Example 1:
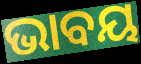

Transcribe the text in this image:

ଭାବୟ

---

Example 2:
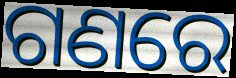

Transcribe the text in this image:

ଗଣରେ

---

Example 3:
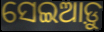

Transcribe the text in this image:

ସେଇଆଡ଼ୁ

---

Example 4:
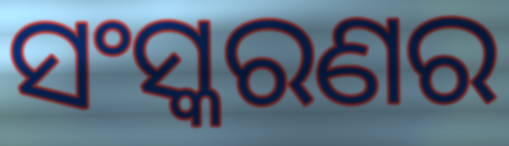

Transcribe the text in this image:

ସଂସ୍କରଣର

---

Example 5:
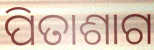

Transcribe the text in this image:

ପିତାଶାଗ